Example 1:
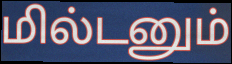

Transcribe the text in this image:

மில்டனும்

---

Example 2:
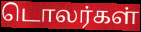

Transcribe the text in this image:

டொலர்கள்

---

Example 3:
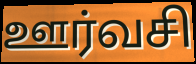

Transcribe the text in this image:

ஊர்வசி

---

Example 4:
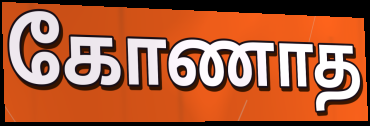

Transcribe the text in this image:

கோணாத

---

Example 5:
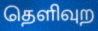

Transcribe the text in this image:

தெளிவுற